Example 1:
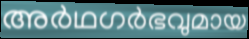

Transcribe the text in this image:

അർഥഗർഭവുമായ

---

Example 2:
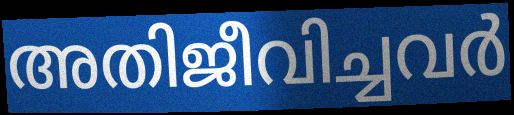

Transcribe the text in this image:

അതിജീവിച്ചവർ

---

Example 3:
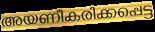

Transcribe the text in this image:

അയണീകരിക്കപ്പെട്ട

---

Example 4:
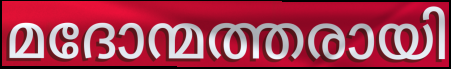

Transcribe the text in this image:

മദോന്മത്തരായി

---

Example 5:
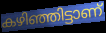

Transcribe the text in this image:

കഴിഞ്ഞിട്ടാണ്